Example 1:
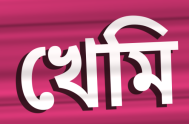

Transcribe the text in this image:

খেমি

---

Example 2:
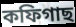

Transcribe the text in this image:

কফিগাছ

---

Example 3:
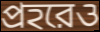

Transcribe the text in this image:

প্রহরেও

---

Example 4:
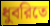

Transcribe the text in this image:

ধুবরিতে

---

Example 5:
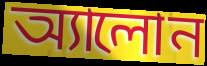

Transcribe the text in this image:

অ্যালোন